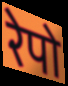
रेपो